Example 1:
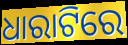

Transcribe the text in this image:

ଧାରାଟିରେ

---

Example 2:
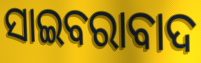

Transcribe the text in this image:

ସାଇବରାବାଦ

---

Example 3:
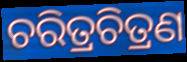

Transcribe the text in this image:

ଚରିତ୍ରଚିତ୍ରଣ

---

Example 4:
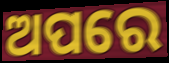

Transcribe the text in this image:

ଅପରେ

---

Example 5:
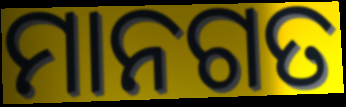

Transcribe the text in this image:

ମାନଗତ